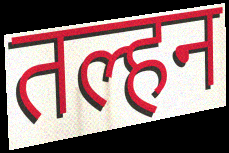
तल्हन